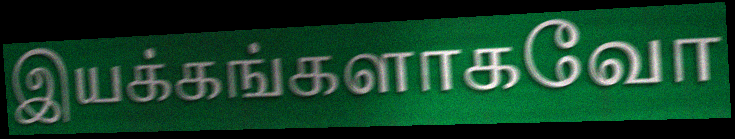
இயக்கங்களாகவோ